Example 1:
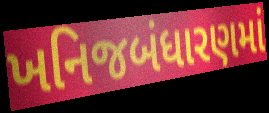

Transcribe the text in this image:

ખનિજબંધારણમાં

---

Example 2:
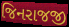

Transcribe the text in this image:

જિનરાજજી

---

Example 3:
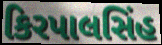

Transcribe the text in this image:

કિરપાલસિંહ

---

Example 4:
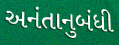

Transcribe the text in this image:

અનંતાનુબંધી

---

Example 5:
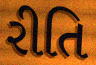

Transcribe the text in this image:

રીતિ